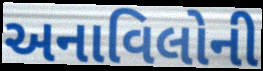
અનાવિલોની